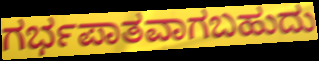
ಗರ್ಭಪಾತವಾಗಬಹುದು